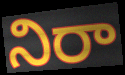
నిరా